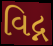
વિદ્ન